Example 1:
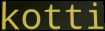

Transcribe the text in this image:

kotti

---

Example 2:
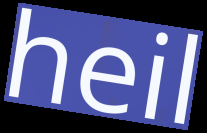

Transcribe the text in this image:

heil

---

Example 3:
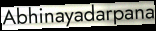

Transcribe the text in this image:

Abhinayadarpana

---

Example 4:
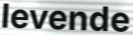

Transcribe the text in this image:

levende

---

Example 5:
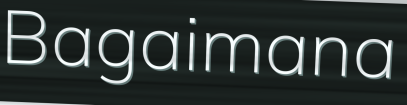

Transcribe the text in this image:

Bagaimana